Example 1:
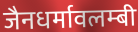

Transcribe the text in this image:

जैनधर्मावलम्बी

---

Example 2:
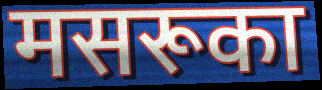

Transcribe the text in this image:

मसरूका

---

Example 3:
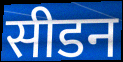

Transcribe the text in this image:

सीडन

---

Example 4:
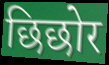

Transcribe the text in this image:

छिछोर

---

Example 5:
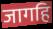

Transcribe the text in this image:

जागहि